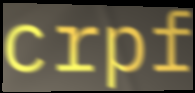
crpf